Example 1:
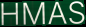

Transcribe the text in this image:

HMAS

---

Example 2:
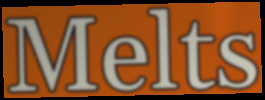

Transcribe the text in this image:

Melts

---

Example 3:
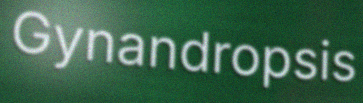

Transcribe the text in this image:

Gynandropsis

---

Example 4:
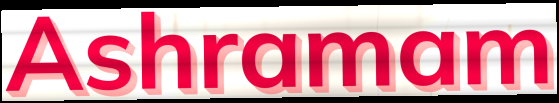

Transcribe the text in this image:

Ashramam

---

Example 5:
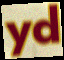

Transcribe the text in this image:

yd